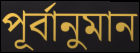
পূর্বানুমান